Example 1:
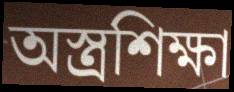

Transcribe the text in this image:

অস্ত্রশিক্ষা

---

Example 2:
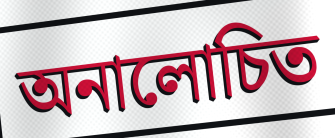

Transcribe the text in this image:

অনালোচিত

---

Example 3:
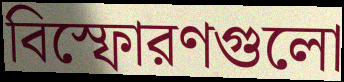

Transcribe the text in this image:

বিস্ফোরণগুলো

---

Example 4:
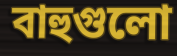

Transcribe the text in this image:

বাহুগুলো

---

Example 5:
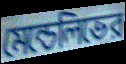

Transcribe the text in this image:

মেন্ডেলিভের